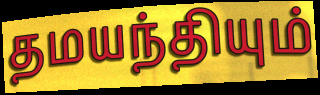
தமயந்தியும்